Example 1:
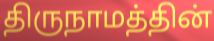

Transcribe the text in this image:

திருநாமத்தின்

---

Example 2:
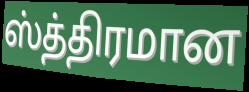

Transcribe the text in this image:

ஸ்த்திரமான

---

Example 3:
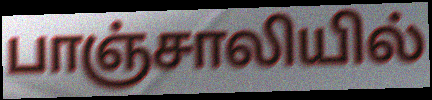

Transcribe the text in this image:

பாஞ்சாலியில்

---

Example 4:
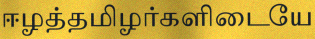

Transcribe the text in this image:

ஈழத்தமிழர்களிடையே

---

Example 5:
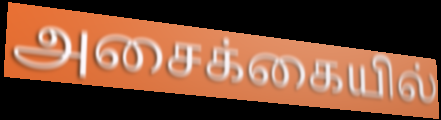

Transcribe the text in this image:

அசைக்கையில்